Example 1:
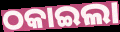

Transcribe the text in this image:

ଠକାଇଲା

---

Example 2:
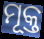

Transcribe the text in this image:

ମୂକ୍ତ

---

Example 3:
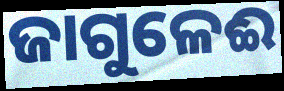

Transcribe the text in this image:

ଜାଗୁଳେଈ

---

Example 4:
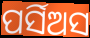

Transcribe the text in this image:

ପର୍ସିଅସ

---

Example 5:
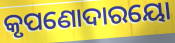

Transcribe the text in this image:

କୃପଣୋଦାରୟୋ